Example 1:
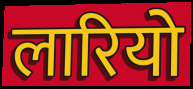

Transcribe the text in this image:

लारियो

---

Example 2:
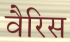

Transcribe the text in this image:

वैरिस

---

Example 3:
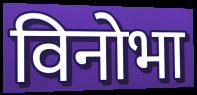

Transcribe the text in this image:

विनोभा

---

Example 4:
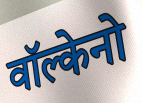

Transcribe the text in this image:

वॉल्केनो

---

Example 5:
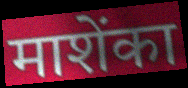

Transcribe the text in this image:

माशेंका